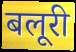
बलूरी